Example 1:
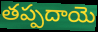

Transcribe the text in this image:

తప్పదాయె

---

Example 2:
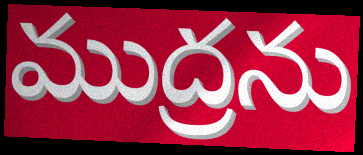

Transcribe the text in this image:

ముద్రను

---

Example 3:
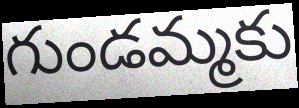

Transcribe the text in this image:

గుండమ్మకు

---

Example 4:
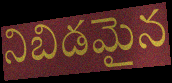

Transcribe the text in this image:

నిబిడమైన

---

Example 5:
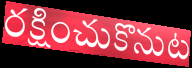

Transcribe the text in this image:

రక్షించుకొనుట